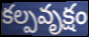
కల్పవృక్షం